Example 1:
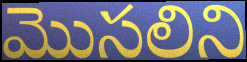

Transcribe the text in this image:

మొసలిని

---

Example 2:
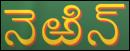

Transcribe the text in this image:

నెఱిన్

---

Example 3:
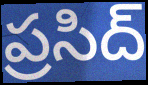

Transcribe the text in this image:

ప్రసిద్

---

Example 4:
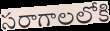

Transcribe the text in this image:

సరాగాలలోకి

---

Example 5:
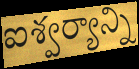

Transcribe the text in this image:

ఐశ్వర్యాన్ని